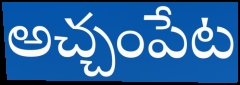
అచ్చంపేట